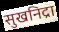
सुखनिद्रा